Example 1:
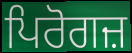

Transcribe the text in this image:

ਪਿਰੋਗਜ਼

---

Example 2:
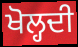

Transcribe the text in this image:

ਖੋਲ੍ਹਦੀ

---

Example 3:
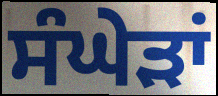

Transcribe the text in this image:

ਸੰਘੇੜਾਂ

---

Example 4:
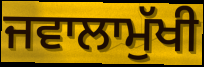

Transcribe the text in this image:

ਜਵਾਲਾਮੁੱਖੀ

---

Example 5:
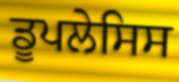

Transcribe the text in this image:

ਡੂਪਲੇਸਿਸ